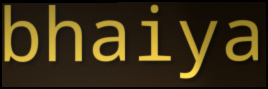
bhaiya